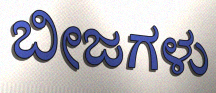
ಬೀಜಗಳು